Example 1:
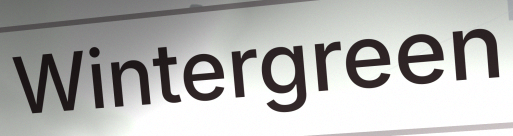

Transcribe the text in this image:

Wintergreen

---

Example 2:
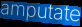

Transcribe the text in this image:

amputate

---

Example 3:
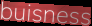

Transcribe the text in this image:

buisness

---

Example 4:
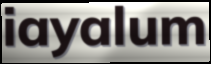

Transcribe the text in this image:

iayalum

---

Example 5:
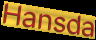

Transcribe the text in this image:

Hansda